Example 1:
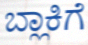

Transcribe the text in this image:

ಬ್ಲಾಕಿಗೆ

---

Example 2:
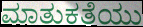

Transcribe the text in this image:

ಮಾತುಕತೆಯು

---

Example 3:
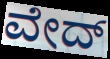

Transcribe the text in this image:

ವೇದ್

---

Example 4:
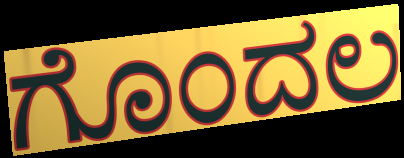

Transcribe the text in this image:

ಗೊಂದಲ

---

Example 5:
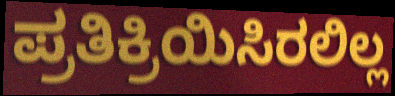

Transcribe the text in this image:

ಪ್ರತಿಕ್ರಿಯಿಸಿರಲಿಲ್ಲ